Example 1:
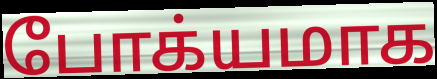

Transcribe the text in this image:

போக்யமாக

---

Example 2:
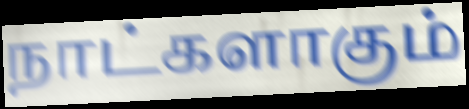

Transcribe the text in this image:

நாட்களாகும்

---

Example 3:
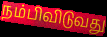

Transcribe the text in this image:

நம்பிவிடுவது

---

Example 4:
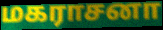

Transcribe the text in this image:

மகராசனா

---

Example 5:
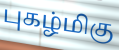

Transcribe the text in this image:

புகழ்மிகு